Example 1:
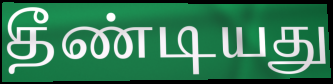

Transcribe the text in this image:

தீண்டியது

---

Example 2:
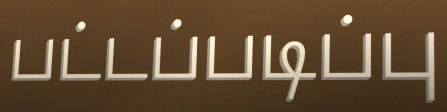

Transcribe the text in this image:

பட்டப்படிப்பு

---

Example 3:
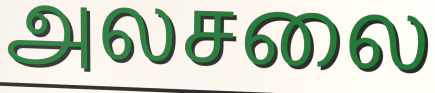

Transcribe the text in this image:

அலசலை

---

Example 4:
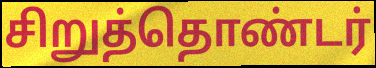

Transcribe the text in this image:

சிறுத்தொண்டர்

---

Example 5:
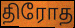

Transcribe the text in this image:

திரோத